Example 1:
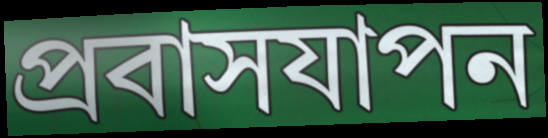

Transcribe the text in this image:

প্রবাসযাপন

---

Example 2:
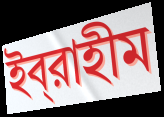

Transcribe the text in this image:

ইব্‌রাহীম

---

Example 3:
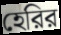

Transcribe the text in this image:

হেরির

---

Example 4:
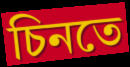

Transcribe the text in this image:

চিনতে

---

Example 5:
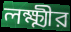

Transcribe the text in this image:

লক্ষ্মীর